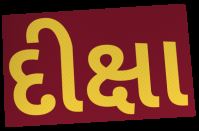
દીક્ષા